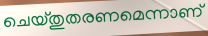
ചെയ്തുതരണമെന്നാണ്